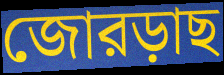
জোরড়াছ